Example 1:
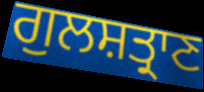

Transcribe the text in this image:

ਗੁਲਸ਼ਤ੍ਰਾਣ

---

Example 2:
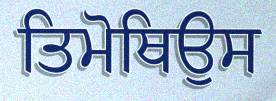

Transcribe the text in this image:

ਤਿਮੋਥਿਉਸ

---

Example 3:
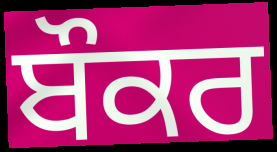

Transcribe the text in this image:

ਬੌਕਰ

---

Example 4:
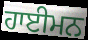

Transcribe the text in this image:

ਹਾਈਮਨ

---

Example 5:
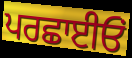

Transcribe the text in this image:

ਪਰਛਾਈਓਂ